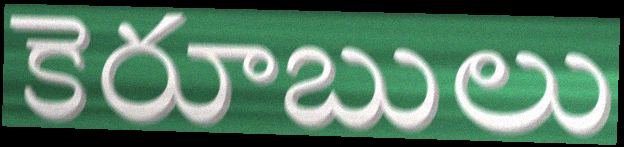
కెరూబులు